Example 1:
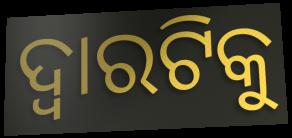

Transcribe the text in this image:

ଦ୍ଵାରଟିକୁ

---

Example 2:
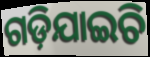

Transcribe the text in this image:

ଗଡ଼ିଯାଇଚି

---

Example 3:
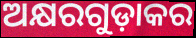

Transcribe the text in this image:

ଅକ୍ଷରଗୁଡ଼ାକର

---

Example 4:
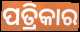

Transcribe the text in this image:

ପତ୍ରିକାର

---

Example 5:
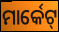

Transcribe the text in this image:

ମାର୍କେଟ୍